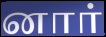
னார்